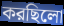
করছিলো